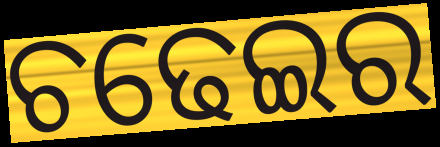
ଚଢେଇର